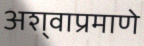
अश्वाप्रमाणे